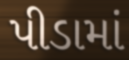
પીડામાં